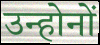
उन्होनों